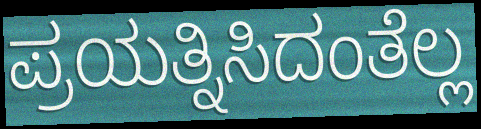
ಪ್ರಯತ್ನಿಸಿದಂತೆಲ್ಲ